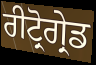
ਰੀਟ੍ਰੋਗ੍ਰੇਡ